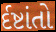
ર્દષ્ટાંતો